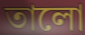
তালো